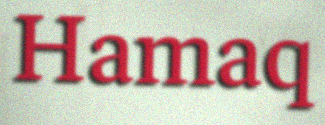
Hamaq